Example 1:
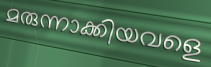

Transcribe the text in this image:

മരുന്നാക്കിയവളെ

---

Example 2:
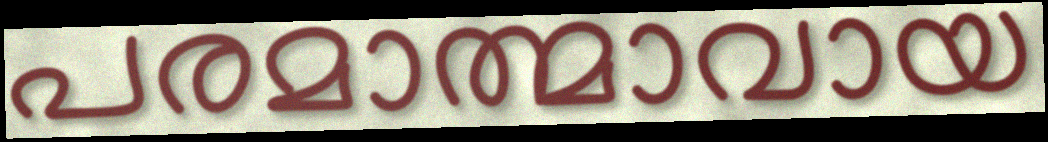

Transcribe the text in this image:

പരമാത്മാവായ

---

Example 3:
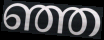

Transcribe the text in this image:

ഞ്ഞ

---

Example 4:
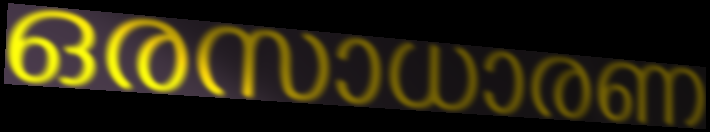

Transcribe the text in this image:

ഒരസാധാരണ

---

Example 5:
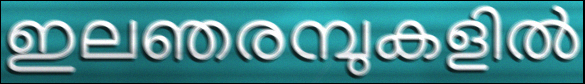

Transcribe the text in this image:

ഇലഞരമ്പുകളിൽ